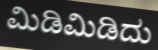
ಮಿಡಿಮಿಡಿದು